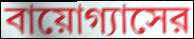
বায়োগ্যাসের